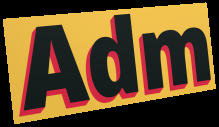
Adm